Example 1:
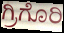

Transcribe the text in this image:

ಗ್ರಿಗೊರಿ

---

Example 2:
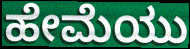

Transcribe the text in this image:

ಹೇಮೆಯು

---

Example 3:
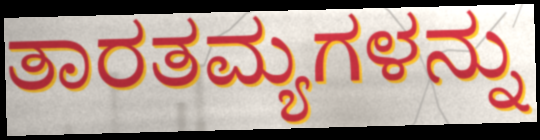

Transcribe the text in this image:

ತಾರತಮ್ಯಗಳನ್ನು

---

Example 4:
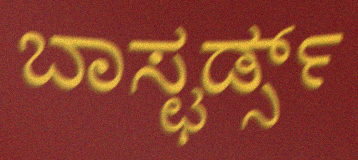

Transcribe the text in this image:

ಬಾಸ್ಟರ್ಡ್ಸ್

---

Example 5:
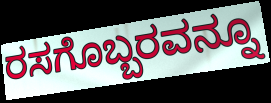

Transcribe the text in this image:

ರಸಗೊಬ್ಬರವನ್ನೂ